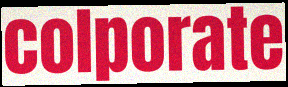
colporate